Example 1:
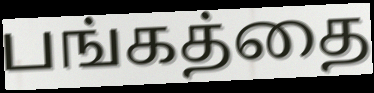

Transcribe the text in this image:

பங்கத்தை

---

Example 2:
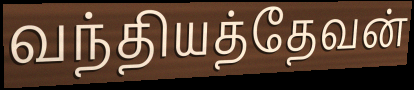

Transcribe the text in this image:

வந்தியத்தேவன்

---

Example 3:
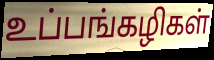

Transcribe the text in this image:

உப்பங்கழிகள்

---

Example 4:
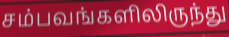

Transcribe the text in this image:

சம்பவங்களிலிருந்து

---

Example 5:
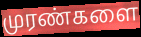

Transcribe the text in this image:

முரண்களை